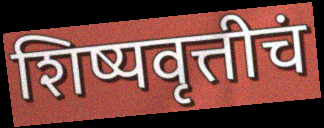
शिष्यवृत्तीचं